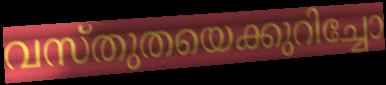
വസ്തുതയെക്കുറിച്ചോ